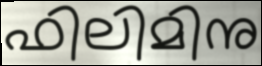
ഫിലിമിനു